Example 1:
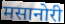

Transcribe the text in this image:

मसानोरी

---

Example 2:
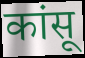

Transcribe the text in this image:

कांसू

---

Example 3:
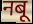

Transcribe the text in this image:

नबू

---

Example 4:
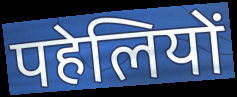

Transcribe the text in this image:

पहेलियों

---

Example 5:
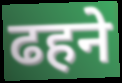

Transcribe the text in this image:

ढहने